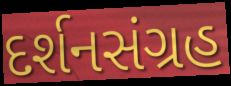
દર્શનસંગ્રહ